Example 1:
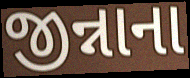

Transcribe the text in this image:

જીન્નાના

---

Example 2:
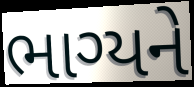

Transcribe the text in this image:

ભાગ્યને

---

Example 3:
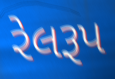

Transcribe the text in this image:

રેલરૂપ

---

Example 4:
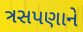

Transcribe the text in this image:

ત્રસપણાને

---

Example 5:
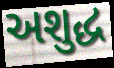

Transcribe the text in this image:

અશુદ્ધ